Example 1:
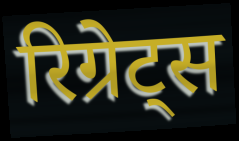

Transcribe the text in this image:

रिग्रेट्स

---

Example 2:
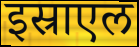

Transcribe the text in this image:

इस्राएल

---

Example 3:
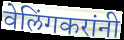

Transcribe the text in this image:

वेलिंगकरांनी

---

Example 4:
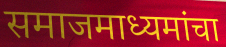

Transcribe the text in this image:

समाजमाध्यमांचा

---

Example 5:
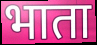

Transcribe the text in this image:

भाता